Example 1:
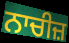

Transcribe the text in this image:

ਨਾਚੀਜ਼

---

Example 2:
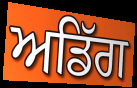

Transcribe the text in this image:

ਅਡਿੱਗ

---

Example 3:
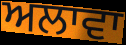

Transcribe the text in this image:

ਅਲਾਵਾ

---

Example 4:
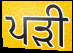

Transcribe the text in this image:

ਪਡ਼ੀ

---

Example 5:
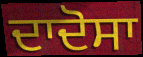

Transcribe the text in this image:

ਦਾਦੋਸਾ